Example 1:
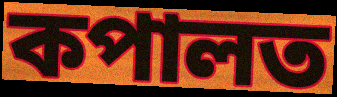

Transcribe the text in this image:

কপালত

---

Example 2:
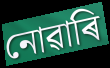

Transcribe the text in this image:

নোৱাৰি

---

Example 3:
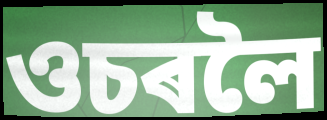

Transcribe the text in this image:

ওচৰলৈ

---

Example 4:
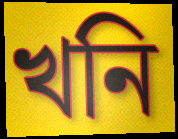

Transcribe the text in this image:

খনি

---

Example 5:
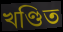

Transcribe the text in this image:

খণ্ডিত